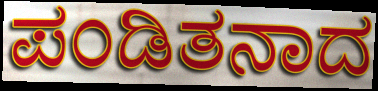
ಪಂಡಿತನಾದ